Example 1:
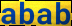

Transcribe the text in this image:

abab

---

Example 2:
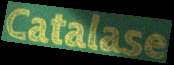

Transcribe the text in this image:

Catalase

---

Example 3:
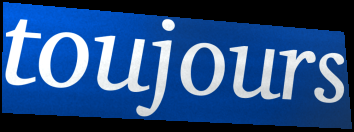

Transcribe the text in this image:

toujours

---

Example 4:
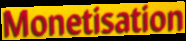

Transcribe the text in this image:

Monetisation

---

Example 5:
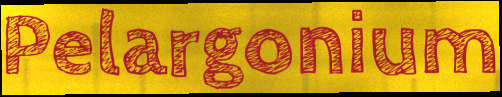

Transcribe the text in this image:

Pelargonium